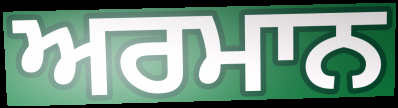
ਅਰਮਾਨ